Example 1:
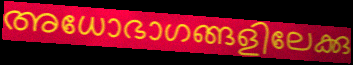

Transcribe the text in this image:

അധോഭാഗങ്ങളിലേക്കു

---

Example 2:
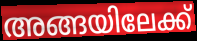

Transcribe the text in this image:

അങ്ങയിലേക്ക്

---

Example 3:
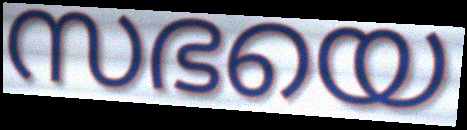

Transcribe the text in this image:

സഭയെ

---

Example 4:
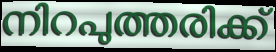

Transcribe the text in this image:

നിറപുത്തരിക്ക്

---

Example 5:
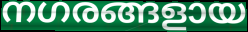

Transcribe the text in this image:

നഗരങ്ങളായ